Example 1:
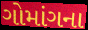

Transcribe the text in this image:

ગોમાંગના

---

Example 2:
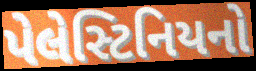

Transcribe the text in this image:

પેલેસ્ટિનિયનો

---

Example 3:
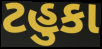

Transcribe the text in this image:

ટહુકા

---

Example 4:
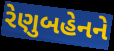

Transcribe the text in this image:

રેણુબહેનને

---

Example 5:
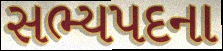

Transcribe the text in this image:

સભ્યપદના